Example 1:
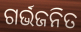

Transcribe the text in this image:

ଗର୍ଭଜନିତ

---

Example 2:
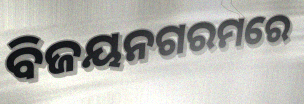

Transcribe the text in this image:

ବିଜୟନଗରମରେ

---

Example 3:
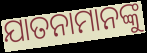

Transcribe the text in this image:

ଯାତନାମାନଙ୍କୁ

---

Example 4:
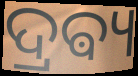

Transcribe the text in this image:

ଦ୍ରଵ୍ୟ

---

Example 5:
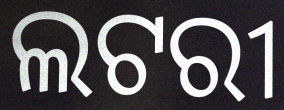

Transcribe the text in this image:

ଲଟରୀ